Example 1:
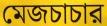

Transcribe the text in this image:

মেজচাচার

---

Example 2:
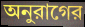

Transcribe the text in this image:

অনুরাগের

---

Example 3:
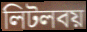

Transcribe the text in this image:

লিটলবয়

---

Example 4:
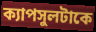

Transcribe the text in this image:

ক্যাপসুলটাকে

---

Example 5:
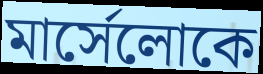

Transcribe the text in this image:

মার্সেলোকে